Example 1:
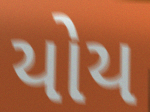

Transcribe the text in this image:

યોય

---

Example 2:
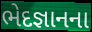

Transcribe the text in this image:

ભેદજ્ઞાનના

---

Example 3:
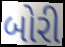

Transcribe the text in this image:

બોરી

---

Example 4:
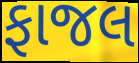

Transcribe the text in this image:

ફાજલ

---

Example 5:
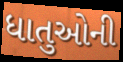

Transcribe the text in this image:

ધાતુઓની